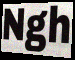
Ngh